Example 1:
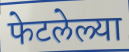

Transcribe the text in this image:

फेटलेल्या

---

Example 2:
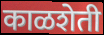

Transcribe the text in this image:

काळशेती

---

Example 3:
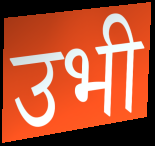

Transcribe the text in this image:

उभी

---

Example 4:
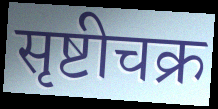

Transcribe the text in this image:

सृष्टीचक्र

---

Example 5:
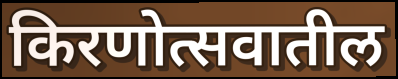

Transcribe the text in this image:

किरणोत्सवातील